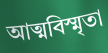
আত্মবিস্মৃতা